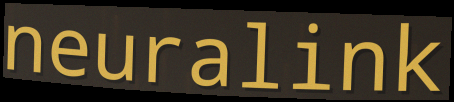
neuralink